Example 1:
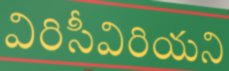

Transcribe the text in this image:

విరిసీవిరియని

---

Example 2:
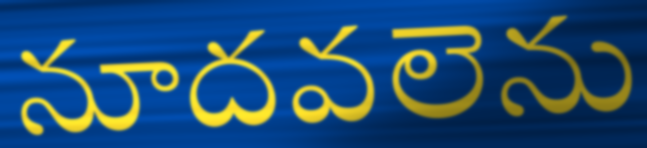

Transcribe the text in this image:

నూదవలెను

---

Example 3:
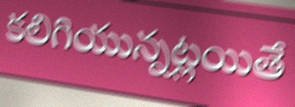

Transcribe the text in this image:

కలిగియున్నట్లయితే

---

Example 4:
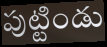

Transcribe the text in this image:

పుట్టిండు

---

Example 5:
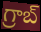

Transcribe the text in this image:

గ్రాబ్